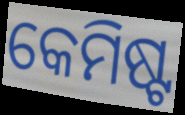
କେମିଷ୍ଟ